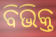
ବିଭିକ୍ତ